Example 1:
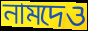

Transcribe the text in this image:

নামদেও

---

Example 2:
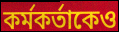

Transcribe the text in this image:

কর্মকর্তাকেও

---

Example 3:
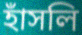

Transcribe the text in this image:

হাঁসলি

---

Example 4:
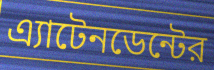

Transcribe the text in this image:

এ্যাটেনডেন্টের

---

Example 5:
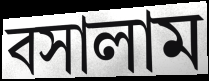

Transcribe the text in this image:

বসালাম